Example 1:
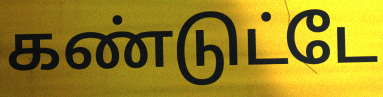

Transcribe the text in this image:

கண்டுட்டே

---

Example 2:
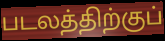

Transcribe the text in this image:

படலத்திற்குப்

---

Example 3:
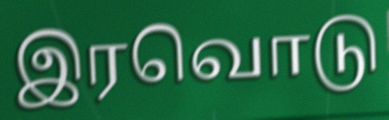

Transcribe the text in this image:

இரவொடு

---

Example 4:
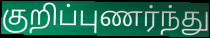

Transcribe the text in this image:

குறிப்புணர்ந்து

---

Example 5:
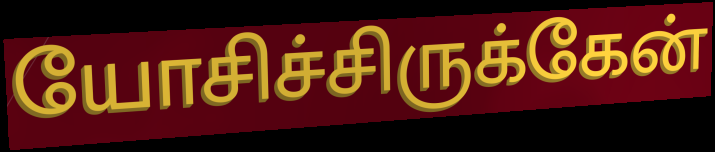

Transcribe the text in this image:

யோசிச்சிருக்கேன்